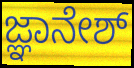
ಜ್ಞಾನೇಶ್